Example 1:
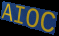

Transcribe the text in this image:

AIOC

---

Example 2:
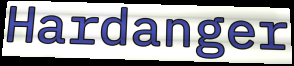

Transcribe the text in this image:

Hardanger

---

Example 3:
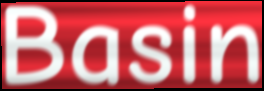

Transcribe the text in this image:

Basin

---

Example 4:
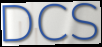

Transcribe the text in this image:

DCS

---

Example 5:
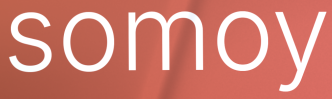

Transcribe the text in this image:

somoy